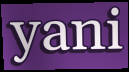
yani